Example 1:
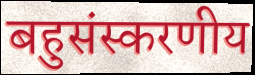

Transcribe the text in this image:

बहुसंस्करणीय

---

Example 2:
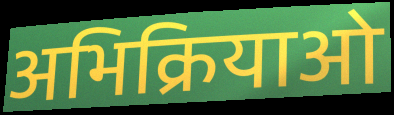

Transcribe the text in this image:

अभिक्रियाओ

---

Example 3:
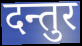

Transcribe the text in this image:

दन्तुर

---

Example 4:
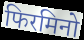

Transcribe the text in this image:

फिरमिनो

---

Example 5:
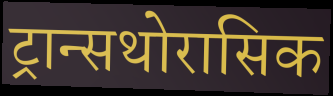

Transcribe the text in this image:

ट्रान्सथोरासिक